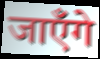
जाएँगे